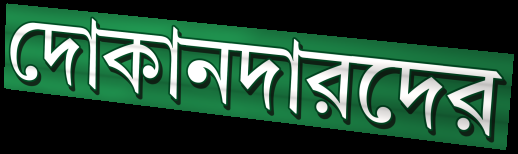
দোকানদারদের